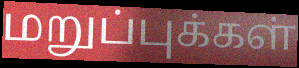
மறுப்புக்கள்